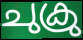
ചുക്രു